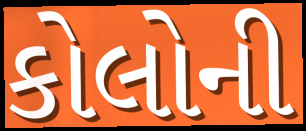
કોલોની